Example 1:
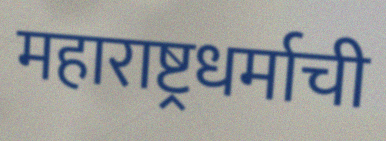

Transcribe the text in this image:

महाराष्ट्रधर्माची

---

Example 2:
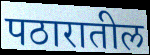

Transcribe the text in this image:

पठारातील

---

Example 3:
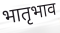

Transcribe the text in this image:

भातृभाव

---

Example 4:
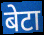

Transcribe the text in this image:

बेटा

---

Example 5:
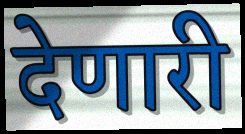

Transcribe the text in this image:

देणारी